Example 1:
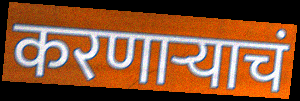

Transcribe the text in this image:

करणाऱ्याचं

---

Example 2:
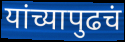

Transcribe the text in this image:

यांच्यापुढचं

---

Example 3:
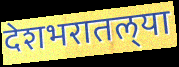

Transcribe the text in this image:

देशभरातल्या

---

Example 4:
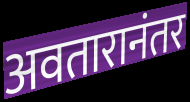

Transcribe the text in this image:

अवतारानंतर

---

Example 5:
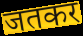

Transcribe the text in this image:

जतकर